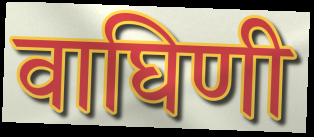
वाघिणी